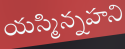
యస్మిన్నహని